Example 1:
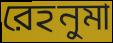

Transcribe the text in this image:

রেহনুমা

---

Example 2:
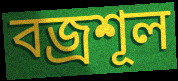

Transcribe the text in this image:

বজ্রশূল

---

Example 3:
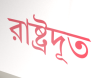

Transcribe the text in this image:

রাষ্ট্রদূত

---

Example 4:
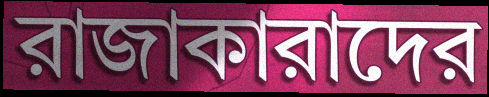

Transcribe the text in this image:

রাজাকারাদের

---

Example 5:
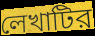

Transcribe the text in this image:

লেখাটির